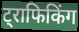
ट्राफिकिंग